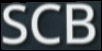
SCB